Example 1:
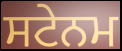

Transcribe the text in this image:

ਸਟੇਨਮ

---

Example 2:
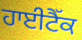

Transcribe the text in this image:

ਹਾਈਟੈੱਕ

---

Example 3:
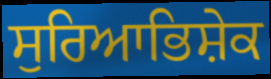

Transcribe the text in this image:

ਸੁਰਿਆਭਿਸ਼ੇਕ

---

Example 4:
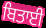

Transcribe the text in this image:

ਬਿਤਾਈ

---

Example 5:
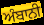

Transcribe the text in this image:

ਅੰਬਾਨੀ